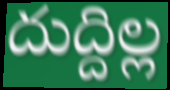
దుద్దిల్ల